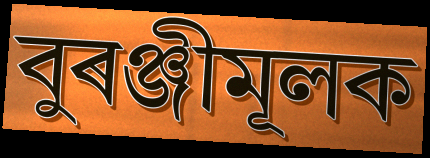
বুৰঞ্জীমূলক